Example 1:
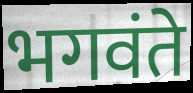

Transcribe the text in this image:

भगवंते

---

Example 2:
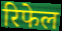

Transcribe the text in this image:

रिफेल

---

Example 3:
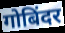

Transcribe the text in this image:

गोबिंदर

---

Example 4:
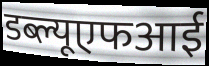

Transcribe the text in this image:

डब्ल्यूएफआई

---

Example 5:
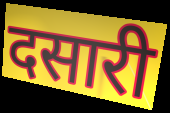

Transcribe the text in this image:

दसारी